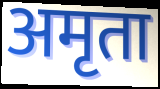
अमृता